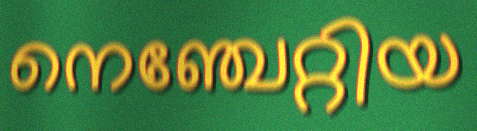
നെഞ്ചേറ്റിയ